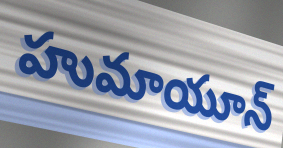
హుమాయూన్